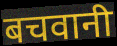
बचवानी